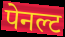
पेनल्ट